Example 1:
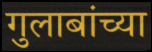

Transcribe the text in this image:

गुलाबांच्या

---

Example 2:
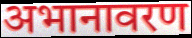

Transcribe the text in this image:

अभानावरण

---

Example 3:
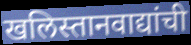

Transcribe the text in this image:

खलिस्तानवाद्यांची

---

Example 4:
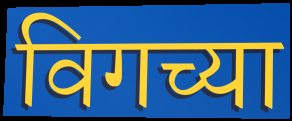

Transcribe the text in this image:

विगच्या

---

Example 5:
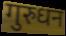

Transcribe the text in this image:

गुरुधन